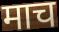
माच